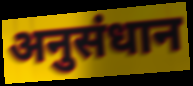
अनुसंधान